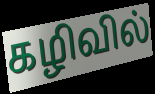
கழிவில்